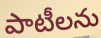
పాటీలను